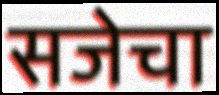
सजेचा